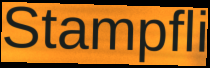
Stampfli